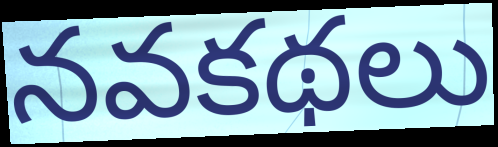
నవకథలు